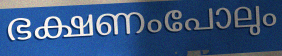
ഭക്ഷണംപോലും